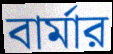
বার্মার